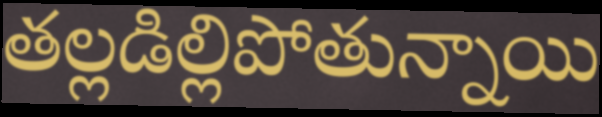
తల్లడిల్లిపోతున్నాయి